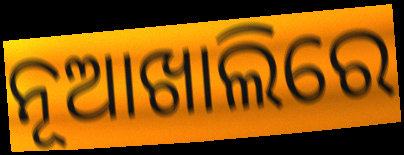
ନୂଆଖାଲିରେ